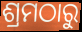
ଶ୍ରମଠାରୁ